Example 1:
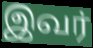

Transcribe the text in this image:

இவர்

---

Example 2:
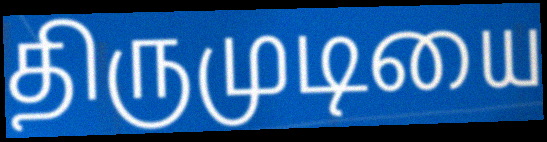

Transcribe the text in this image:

திருமுடியை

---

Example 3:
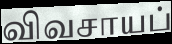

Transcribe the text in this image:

விவசாயப்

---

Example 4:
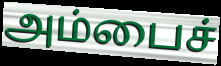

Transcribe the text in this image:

அம்பைச்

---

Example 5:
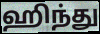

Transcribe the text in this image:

ஹிந்து